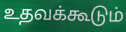
உதவக்கூடும்